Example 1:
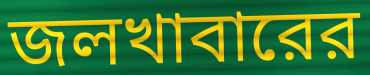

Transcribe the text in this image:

জলখাবারের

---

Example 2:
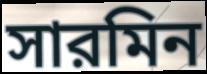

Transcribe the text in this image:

সারমিন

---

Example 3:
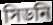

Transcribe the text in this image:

সিডনি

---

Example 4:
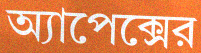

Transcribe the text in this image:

অ্যাপেক্সের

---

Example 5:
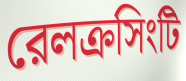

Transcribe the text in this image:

রেলক্রসিংটি